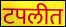
टपलीत